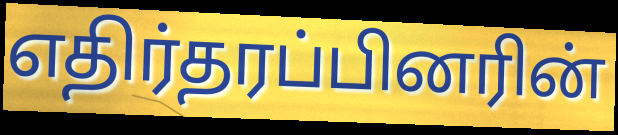
எதிர்தரப்பினரின்